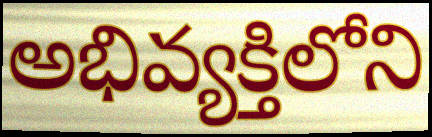
అభివ్యక్తిలోని